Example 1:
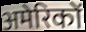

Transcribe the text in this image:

अमेरिकों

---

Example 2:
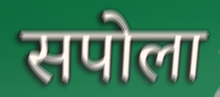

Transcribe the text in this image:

सपोला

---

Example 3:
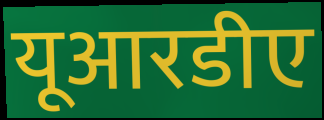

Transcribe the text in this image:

यूआरडीए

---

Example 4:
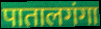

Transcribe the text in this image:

पातालगंगा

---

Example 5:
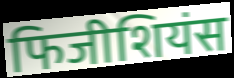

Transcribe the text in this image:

फिजीशियंस